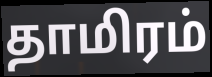
தாமிரம்